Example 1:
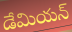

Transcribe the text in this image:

డేమియన్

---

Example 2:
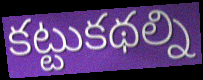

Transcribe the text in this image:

కట్టుకథల్ని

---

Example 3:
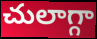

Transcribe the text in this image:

చులాగ్గా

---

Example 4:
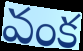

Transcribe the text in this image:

వంక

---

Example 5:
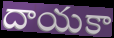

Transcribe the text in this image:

దాయకా